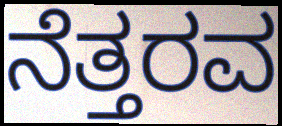
ನೆತ್ತರವ